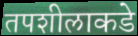
तपशीलाकडे